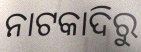
ନାଟକାଦିରୁ